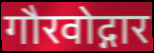
गौरवोद्गार